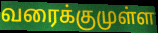
வரைக்குமுள்ள